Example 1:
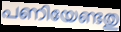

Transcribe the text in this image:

പണിയേണ്ടതു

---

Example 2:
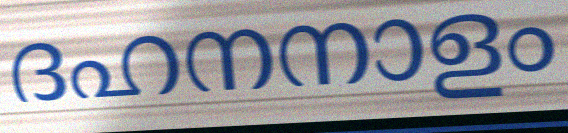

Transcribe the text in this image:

ദഹനനാളം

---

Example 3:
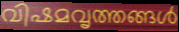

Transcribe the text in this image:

വിഷമവൃത്തങ്ങൾ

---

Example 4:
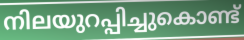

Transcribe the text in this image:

നിലയുറപ്പിച്ചുകൊണ്ട്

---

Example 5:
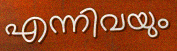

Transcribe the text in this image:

എന്നിവയും